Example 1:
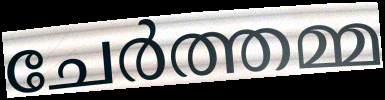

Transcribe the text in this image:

ചേർത്തമ്മ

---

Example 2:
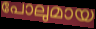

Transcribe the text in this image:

പോലുമായ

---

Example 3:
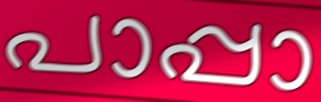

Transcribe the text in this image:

പാപ്പാ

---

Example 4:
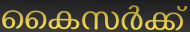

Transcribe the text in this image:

കൈസർക്ക്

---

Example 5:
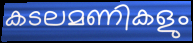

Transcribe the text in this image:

കടലമണികളും